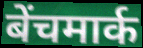
बेंचमार्क